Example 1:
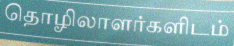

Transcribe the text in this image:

தொழிலாளர்களிடம்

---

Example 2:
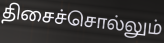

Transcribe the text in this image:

திசைச்சொல்லும்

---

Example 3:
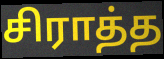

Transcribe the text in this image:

சிராத்த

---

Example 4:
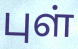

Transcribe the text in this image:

புள்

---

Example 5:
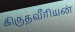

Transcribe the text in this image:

கிருதவீரியன்